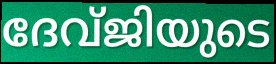
ദേവ്ജിയുടെ